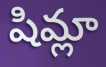
షిమ్లా